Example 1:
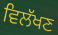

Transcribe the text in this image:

ਵਿਲੱਖਣ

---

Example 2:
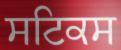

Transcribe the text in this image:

ਸਟਿਕਸ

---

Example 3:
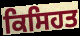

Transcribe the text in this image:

ਕਿਸਿਹਤ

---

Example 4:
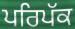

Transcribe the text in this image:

ਪਰਿਪੱਕ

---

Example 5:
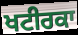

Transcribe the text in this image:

ਖਟੀਰਕਾ